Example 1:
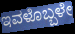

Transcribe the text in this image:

ಇವಳೊಬ್ಬಳೇ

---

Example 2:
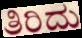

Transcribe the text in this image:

ತಿರಿದು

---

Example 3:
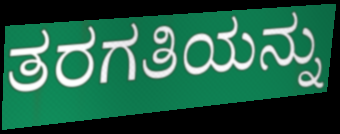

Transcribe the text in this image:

ತರಗತಿಯನ್ನು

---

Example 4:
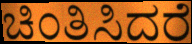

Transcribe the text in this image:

ಚಿಂತಿಸಿದರೆ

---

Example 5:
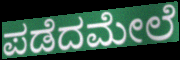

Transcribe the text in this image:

ಪಡೆದಮೇಲೆ